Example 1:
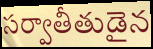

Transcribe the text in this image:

సర్వాతీతుడైన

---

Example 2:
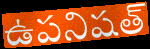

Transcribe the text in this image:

ఉపనిషత్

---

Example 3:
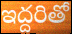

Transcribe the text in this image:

ఇద్దరితో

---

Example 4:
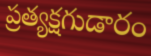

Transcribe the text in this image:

ప్రత్యక్షగుడారం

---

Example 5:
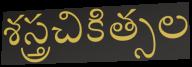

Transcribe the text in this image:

శస్త్రచికిత్సల